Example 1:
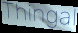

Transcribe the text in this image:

Thingal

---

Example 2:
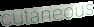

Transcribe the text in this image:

cutaneous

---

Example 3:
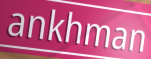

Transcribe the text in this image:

ankhman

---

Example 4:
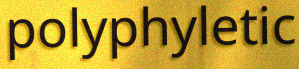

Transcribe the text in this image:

polyphyletic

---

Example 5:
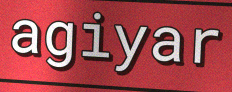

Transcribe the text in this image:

agiyar